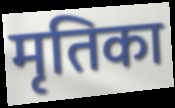
मृतिका